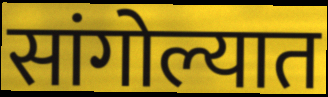
सांगोल्यात